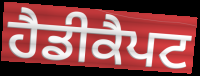
ਹੈਡੀਕੈਪਟ